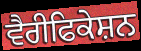
ਵੈਰੀਫਿਕੇਸ਼ਨ